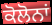
ਕੋਲੋਨਾਂ